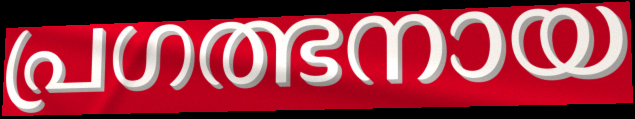
പ്രഗത്ഭനായ